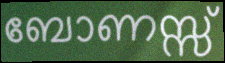
ബോണസ്സ്